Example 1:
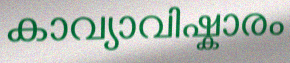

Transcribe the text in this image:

കാവ്യാവിഷ്കാരം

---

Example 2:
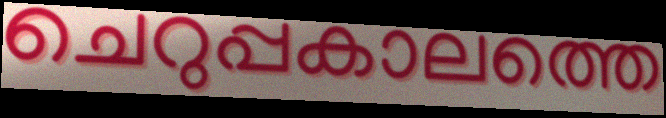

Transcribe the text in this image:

ചെറുപ്പകാലത്തെ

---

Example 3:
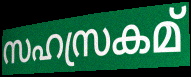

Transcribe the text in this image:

സഹസ്രകമ്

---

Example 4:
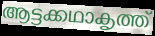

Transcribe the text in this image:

ആട്ടക്കഥാകൃത്ത്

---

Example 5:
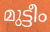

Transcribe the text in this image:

മുട്ടീം